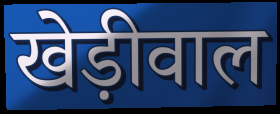
खेड़ीवाल